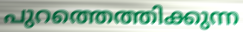
പുറത്തെത്തിക്കുന്ന